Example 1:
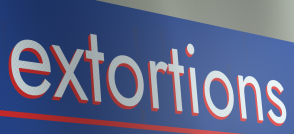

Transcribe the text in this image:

extortions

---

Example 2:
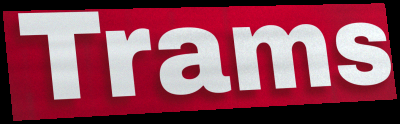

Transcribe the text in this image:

Trams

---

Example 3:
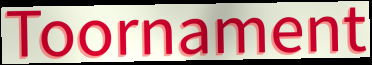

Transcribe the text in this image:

Toornament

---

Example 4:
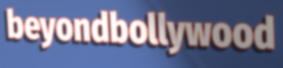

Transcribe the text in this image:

beyondbollywood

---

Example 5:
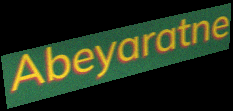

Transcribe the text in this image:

Abeyaratne